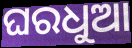
ଘରଧୁଆ